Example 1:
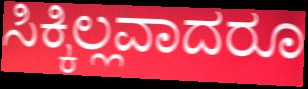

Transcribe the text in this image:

ಸಿಕ್ಕಿಲ್ಲವಾದರೂ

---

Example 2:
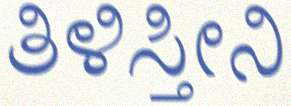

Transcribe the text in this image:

ತಿಳಿಸ್ತೀನಿ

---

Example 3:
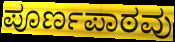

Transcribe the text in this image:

ಪೂರ್ಣಪಾಠವು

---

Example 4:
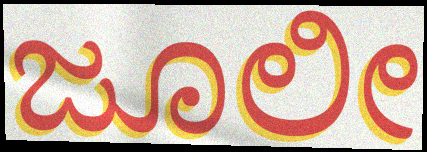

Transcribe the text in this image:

ಜೂಲೀ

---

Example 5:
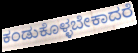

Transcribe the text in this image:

ಕಂಡುಕೊಳ್ಳಬೇಕಾದರೆ